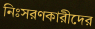
নিঃসরণকারীদের